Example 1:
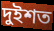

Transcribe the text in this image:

দুইশত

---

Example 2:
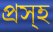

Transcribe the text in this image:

প্রস্হ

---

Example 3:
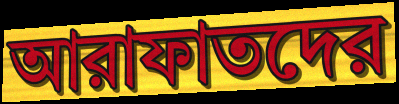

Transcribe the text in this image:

আরাফাতদের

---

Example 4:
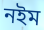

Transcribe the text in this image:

নইম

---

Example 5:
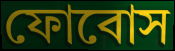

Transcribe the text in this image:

ফোবোস